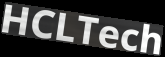
HCLTech